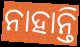
ନାହାନ୍ତି